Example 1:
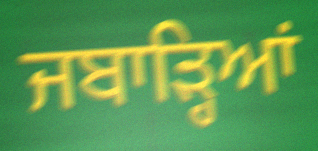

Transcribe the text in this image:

ਜਬਾੜ੍ਹਿਆਂ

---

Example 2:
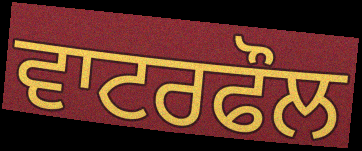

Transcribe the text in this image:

ਵਾਟਰਫੌਲ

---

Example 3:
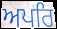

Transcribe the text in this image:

ਅਪਰਿ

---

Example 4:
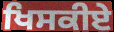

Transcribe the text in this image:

ਖਿਸਕੀਏ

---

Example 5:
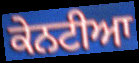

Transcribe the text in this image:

ਕੇਨਟੀਆ